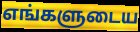
எங்களுடைய